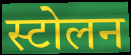
स्टोलन